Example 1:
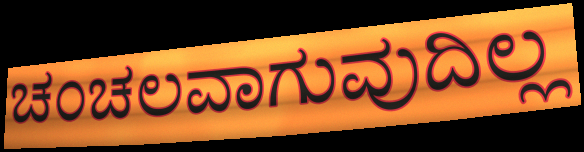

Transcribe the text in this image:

ಚಂಚಲವಾಗುವುದಿಲ್ಲ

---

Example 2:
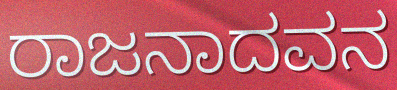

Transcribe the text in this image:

ರಾಜನಾದವನ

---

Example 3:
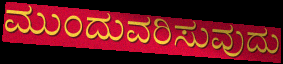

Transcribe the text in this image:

ಮುಂದುವರಿಸುವುದು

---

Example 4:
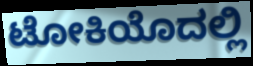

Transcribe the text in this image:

ಟೋಕಿಯೊದಲ್ಲಿ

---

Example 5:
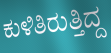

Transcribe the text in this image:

ಕುಳಿತಿರುತ್ತಿದ್ದ